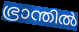
ഭ്രാന്തിൽ